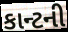
કાન્ટની